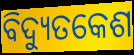
ବିଦ୍ୟୁତକେଶ